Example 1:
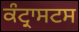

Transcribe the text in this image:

ਕੰਟ੍ਰਾਸਟਸ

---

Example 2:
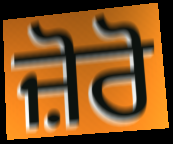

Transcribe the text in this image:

ਜ਼ੋਰੋ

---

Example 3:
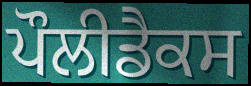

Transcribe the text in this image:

ਪੌਲੀਡੈਕਸ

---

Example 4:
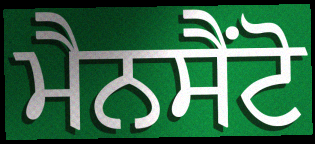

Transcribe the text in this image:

ਮੈਨਸੈਂਟੋ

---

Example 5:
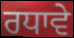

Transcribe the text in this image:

ਰਧਾਵੇ